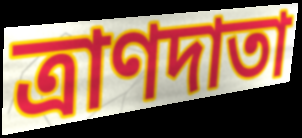
ত্রাণদাতা